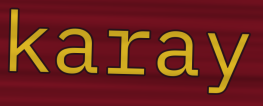
karay